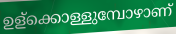
ഉള്ക്കൊള്ളുമ്പോഴാണ്